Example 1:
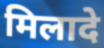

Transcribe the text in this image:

मिलादे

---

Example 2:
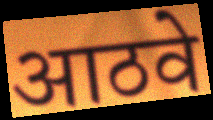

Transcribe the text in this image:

आठवे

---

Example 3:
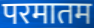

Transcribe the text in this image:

परमातम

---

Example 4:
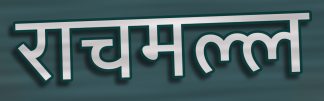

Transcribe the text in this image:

राचमल्ल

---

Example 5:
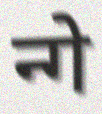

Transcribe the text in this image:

न्गे